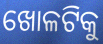
ଖୋଳଟିକୁ